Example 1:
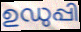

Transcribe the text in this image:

ഉഡുപ്പി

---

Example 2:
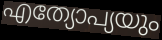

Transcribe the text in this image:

എത്യോപ്യയും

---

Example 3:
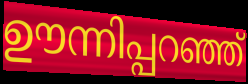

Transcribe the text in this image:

ഊന്നിപ്പറഞ്ഞ്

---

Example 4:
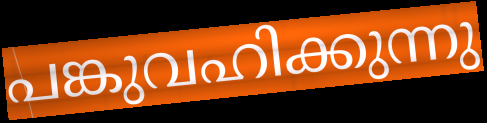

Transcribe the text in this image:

പങ്കുവഹിക്കുന്നു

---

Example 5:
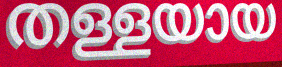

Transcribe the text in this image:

തള്ളയായ